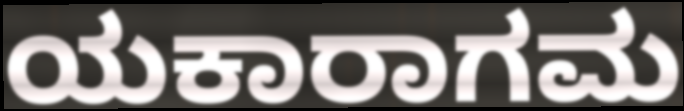
ಯಕಾರಾಗಮ